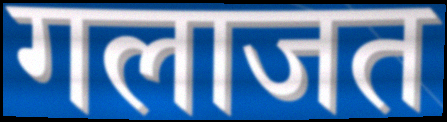
गलाजत